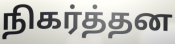
நிகர்த்தன